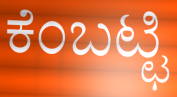
ಕೆಂಬಟ್ಟಿ